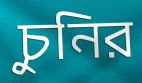
চুনির